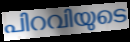
പിറവിയുടെ